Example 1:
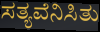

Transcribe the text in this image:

ಸತ್ಯವೆನಿಸಿತು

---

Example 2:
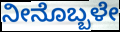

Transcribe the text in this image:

ನೀನೊಬ್ಬಳೇ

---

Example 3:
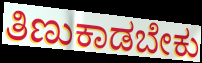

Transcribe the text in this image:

ತಿಣುಕಾಡಬೇಕು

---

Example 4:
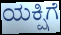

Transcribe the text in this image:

ಯಕ್ಷಿಗೆ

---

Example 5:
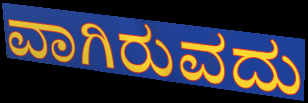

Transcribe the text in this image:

ವಾಗಿರುವದು